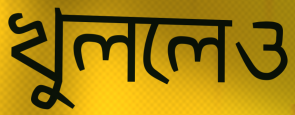
খুললেও